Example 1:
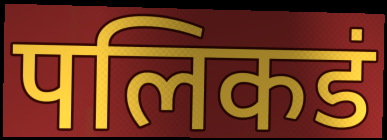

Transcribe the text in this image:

पलिकडं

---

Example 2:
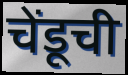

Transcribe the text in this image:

चेंडूची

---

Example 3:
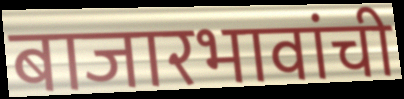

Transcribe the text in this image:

बाजारभावांची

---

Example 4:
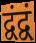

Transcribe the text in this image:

द्वंद्वं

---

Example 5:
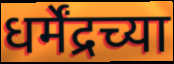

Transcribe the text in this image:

धर्मेंद्रच्या